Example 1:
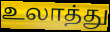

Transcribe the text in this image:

உலாத்து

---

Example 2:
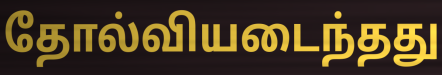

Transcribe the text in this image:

தோல்வியடைந்தது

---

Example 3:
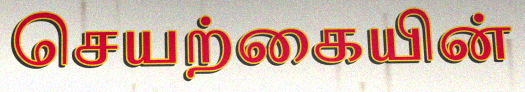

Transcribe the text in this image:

செயற்கையின்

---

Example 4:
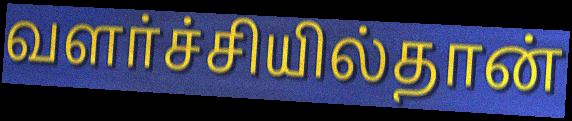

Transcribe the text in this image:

வளர்ச்சியில்தான்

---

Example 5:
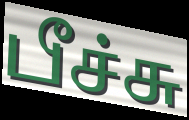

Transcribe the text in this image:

பீச்சு